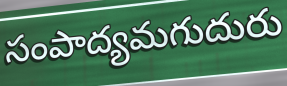
సంపాద్యమగుదురు